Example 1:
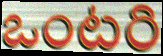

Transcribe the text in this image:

ఒంటరి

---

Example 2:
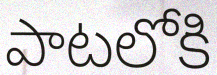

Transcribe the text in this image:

పాటలోకి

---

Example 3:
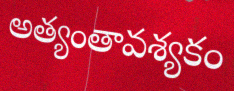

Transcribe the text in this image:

అత్యంతావశ్యకం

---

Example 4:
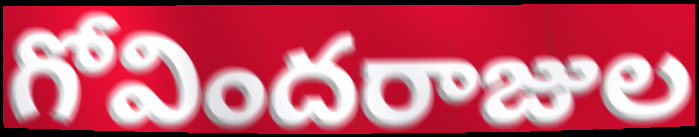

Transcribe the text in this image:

గోవిందరాజుల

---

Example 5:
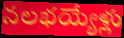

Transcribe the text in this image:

నలభయ్యేళ్లు